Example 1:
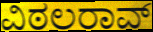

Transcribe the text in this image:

ವಿಠಲರಾವ್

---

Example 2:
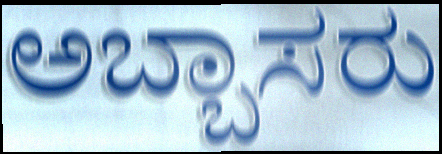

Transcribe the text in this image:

ಅಬ್ಬಾಸರು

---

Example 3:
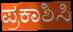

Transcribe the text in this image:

ಪ್ರಕಾಶಿಸಿ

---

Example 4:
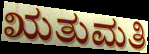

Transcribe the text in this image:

ಋತುಮತಿ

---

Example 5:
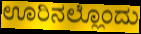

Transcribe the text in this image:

ಊರಿನಲ್ಲೊಂದು